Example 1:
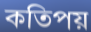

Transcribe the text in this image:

কতিপয়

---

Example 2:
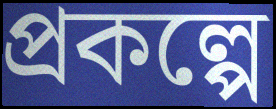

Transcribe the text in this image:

প্রকল্পে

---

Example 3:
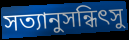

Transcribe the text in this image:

সত্যানুসন্ধিৎসু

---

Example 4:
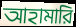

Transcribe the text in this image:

আহামারি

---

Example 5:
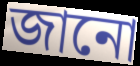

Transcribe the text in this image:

জানো